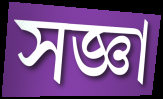
সজ্ঞা